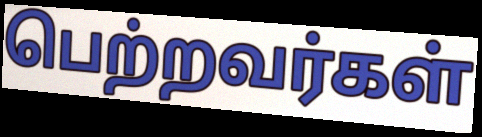
பெற்றவர்கள்